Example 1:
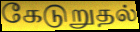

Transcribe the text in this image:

கேடுறுதல்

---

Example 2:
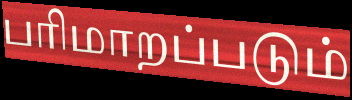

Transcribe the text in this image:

பரிமாறப்படும்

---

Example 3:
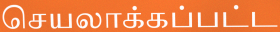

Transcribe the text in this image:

செயலாக்கப்பட்ட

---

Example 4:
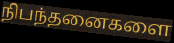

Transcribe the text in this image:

நிபந்தனைகளை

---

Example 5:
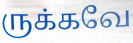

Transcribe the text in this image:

ருக்கவே